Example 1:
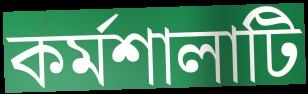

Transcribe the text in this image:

কর্মশালাটি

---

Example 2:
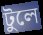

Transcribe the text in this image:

টুলে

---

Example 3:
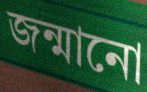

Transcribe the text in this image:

জন্মানো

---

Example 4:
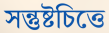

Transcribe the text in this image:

সন্তুষ্টচিত্তে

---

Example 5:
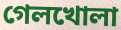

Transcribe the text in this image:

গেলখোলা